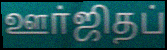
ஊர்ஜிதப்